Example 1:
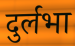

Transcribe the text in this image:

दुर्लभा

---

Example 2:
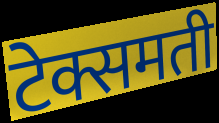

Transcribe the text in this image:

टेक्समती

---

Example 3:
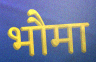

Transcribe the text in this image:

भौमा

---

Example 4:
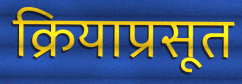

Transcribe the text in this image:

क्रियाप्रसूत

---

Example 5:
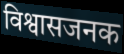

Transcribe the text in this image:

विश्वासजनक